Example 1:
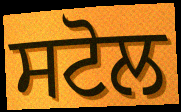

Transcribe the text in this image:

ਸਟੋਲ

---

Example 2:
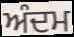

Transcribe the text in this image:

ਅੰਦਮ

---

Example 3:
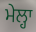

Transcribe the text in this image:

ਮੇਲ੍ਹਾ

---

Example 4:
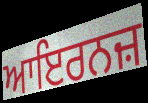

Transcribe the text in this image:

ਆਇਰਨਜ਼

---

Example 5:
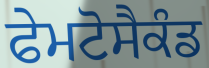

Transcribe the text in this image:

ਫੇਮਟੋਸੈਕੰਡ